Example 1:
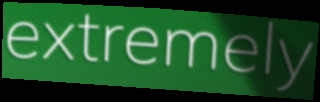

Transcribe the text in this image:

extremely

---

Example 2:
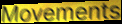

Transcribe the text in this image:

Movements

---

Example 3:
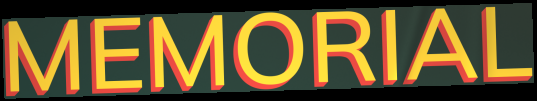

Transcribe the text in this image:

MEMORIAL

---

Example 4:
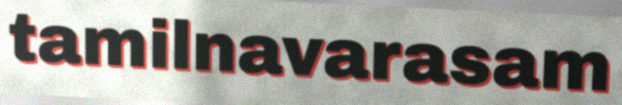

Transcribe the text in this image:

tamilnavarasam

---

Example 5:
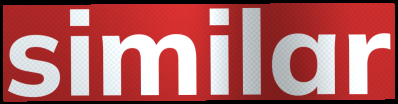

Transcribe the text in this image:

similar